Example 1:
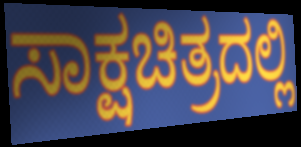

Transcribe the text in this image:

ಸಾಕ್ಷಚಿತ್ರದಲ್ಲಿ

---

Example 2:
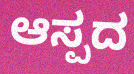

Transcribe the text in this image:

ಆಸ್ಪದ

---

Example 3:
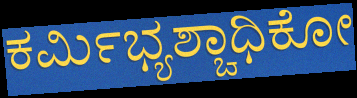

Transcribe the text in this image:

ಕರ್ಮಿಭ್ಯಶ್ಚಾಧಿಕೋ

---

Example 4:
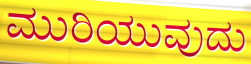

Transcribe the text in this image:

ಮುರಿಯುವುದು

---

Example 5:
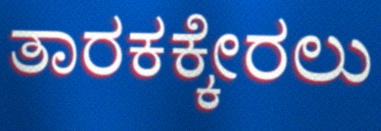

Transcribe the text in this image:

ತಾರಕಕ್ಕೇರಲು